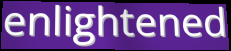
enlightened